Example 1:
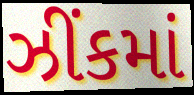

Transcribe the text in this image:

ઝીંકમાં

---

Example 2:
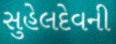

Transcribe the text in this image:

સુહેલદેવની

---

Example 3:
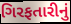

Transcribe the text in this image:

ગિરફતારીનું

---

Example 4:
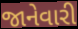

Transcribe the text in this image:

જાનેવારી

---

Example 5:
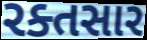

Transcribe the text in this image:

રક્તસાર